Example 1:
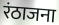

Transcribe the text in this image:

रंठाजना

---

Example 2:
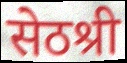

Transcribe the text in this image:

सेठश्री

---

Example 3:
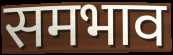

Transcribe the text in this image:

समभाव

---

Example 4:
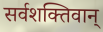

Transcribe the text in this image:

सर्वशक्तिवान्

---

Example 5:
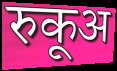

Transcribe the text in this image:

रुकूअ